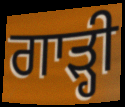
ਗਾੜ੍ਹੀ